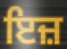
ਇਜ਼